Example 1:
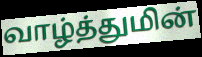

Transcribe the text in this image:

வாழ்த்துமின்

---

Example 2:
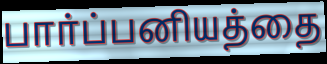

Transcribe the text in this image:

பார்ப்பனியத்தை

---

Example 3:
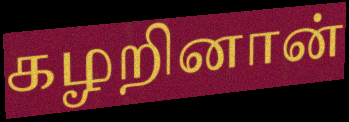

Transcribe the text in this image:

கழறினான்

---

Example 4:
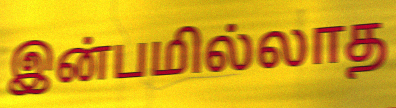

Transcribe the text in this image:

இன்பமில்லாத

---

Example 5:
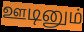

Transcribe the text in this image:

ஊடினும்